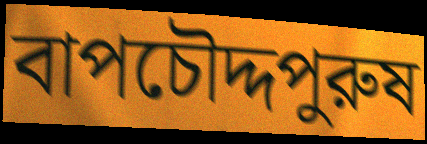
বাপচৌদ্দপুরুষ